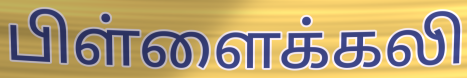
பிள்ளைக்கலி